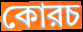
কোরচ